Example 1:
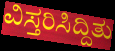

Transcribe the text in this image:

ವಿಸ್ತರಿಸಿದ್ದಿತು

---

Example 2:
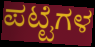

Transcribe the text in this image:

ಪಟ್ಟೆಗಳ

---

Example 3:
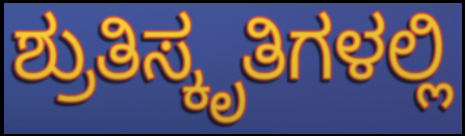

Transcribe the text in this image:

ಶ್ರುತಿಸ್ಕೃತಿಗಳಲ್ಲಿ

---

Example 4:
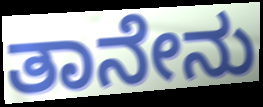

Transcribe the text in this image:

ತಾನೇನು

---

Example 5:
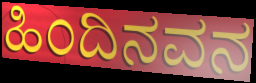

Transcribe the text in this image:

ಹಿಂದಿನವನ